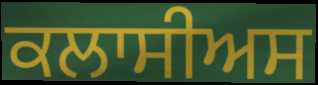
ਕਲਾਸੀਅਸ